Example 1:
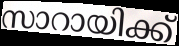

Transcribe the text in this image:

സാറായിക്ക്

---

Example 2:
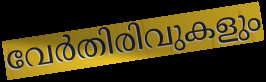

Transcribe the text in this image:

വേർതിരിവുകളും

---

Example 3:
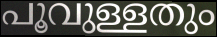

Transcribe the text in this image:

പൂവുള്ളതും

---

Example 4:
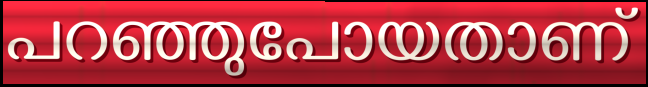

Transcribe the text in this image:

പറഞ്ഞുപോയതാണ്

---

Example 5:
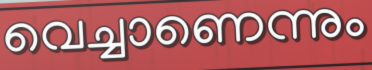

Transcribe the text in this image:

വെച്ചാണെന്നും